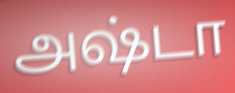
அஷ்டா